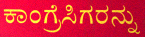
ಕಾಂಗ್ರೆಸಿಗರನ್ನು